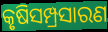
କୃଷିସମ୍ପ୍ରସାରଣ